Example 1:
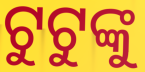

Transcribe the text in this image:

ଟୁଟୁଙ୍କୁ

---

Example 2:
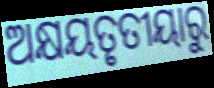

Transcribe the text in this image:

ଅକ୍ଷୟତୃତୀୟାରୁ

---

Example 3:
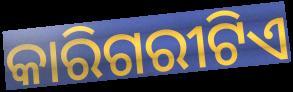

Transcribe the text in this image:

କାରିଗରୀଟିଏ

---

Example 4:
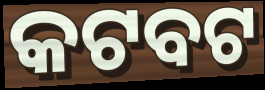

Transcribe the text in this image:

କଟବଟ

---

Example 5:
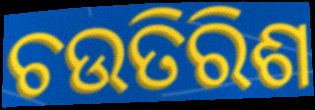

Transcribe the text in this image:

ଚଉତିରିଶ